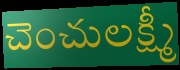
చెంచులక్ష్మీ